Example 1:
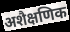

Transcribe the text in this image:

अशैक्षणिक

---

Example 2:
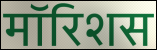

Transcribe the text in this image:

मॉरिशस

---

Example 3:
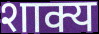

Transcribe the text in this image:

शाक्य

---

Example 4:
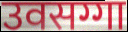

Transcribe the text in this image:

उवसग्गा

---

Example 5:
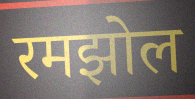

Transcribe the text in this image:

रमझोल